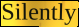
Silently